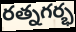
రత్నగర్భ